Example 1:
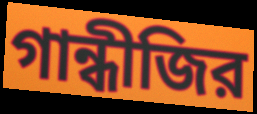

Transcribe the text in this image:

গান্ধীজির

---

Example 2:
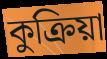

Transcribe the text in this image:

কুক্রিয়া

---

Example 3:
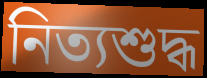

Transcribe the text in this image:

নিত্যশুদ্ধ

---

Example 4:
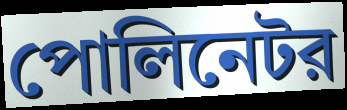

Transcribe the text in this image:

পোলিনেটর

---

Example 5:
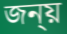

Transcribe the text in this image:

জন্য়